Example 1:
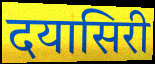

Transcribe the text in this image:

दयासिरी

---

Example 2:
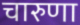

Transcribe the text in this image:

चारुणा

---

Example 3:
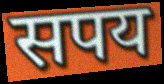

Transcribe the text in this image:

सपय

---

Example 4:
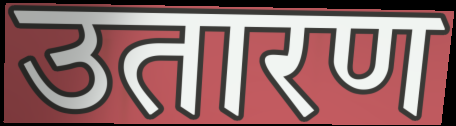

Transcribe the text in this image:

उतारण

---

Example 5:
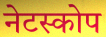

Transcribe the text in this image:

नेटस्कोप